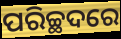
ପରିଚ୍ଛଦରେ